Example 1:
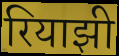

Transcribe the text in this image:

रियाझी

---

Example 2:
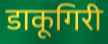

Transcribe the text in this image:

डाकूगिरी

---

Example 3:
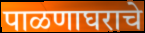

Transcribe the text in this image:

पाळणाघराचे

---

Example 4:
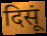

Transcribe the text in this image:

दिसूं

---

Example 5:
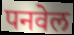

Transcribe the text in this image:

पनवेल